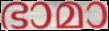
ഭാമാ